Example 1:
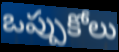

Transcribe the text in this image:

ఒప్పుకోలు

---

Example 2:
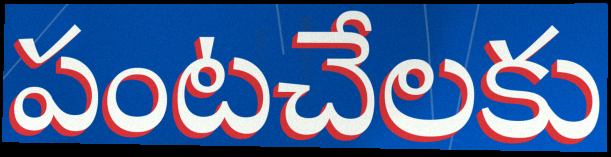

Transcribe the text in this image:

పంటచేలకు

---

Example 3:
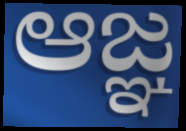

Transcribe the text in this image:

ఆజ్ఞ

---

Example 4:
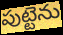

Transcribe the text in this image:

పుట్టెను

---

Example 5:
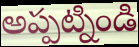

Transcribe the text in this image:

అప్పట్నిండి